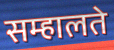
सम्हालते